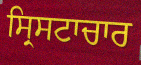
ਸ੍ਰਿਸਟਾਚਾਰ